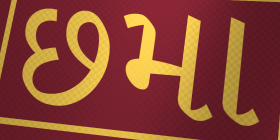
છમા